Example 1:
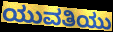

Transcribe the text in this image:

ಯುವತಿಯು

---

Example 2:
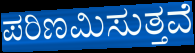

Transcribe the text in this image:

ಪರಿಣಮಿಸುತ್ತವೆ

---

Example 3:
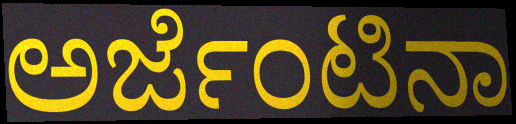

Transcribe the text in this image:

ಅರ್ಜೆಂಟಿನಾ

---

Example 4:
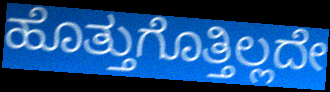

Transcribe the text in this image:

ಹೊತ್ತುಗೊತ್ತಿಲ್ಲದೇ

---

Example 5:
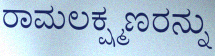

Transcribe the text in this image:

ರಾಮಲಕ್ಷ್ಮಣರನ್ನು